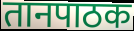
तानपाठक